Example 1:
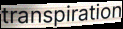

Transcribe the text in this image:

transpiration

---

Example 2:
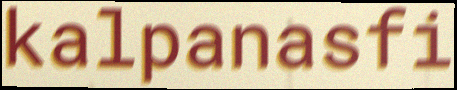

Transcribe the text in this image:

kalpanasfi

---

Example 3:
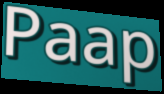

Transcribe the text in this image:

Paap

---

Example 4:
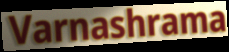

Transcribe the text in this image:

Varnashrama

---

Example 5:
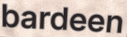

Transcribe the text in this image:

bardeen